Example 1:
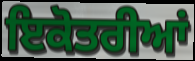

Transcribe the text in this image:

ਇਕੋਤਰੀਆਂ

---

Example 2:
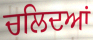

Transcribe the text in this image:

ਚਲਿਦਆਂ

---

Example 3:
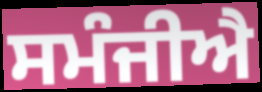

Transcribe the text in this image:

ਸਮੰਜੀਐ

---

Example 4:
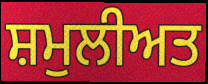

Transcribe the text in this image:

ਸ਼ਮੁਲੀਅਤ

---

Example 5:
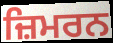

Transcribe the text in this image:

ਜ਼ਿਮਰਨ